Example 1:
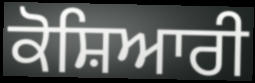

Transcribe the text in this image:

ਕੋਸ਼ਿਆਰੀ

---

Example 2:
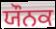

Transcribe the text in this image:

ਯੌਨਕ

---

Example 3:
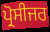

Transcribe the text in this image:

ਪ੍ਰੋਸੀਜਰ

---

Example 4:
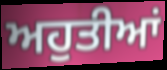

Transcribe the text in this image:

ਅਹੁਤੀਆਂ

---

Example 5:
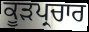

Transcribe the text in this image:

ਕੂੜਪ੍ਰਚਾਰ